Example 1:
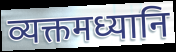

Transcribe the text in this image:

व्यक्तमध्यानि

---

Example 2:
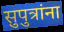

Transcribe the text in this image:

सुपुत्रांना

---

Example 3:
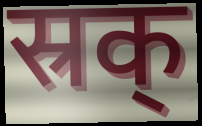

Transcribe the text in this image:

स्रक्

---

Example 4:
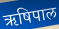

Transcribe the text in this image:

ऋषिपाल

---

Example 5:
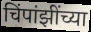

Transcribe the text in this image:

चिंपांझींच्या